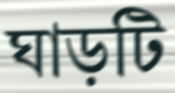
ঘাড়টি